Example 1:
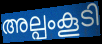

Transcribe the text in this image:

അല്പംകൂടി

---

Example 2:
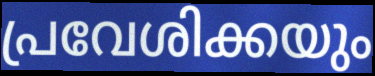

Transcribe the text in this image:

പ്രവേശിക്കയും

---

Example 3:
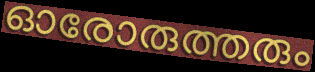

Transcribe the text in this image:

ഓരോരുത്തരും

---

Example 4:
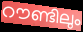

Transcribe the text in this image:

റൗണ്ടിലും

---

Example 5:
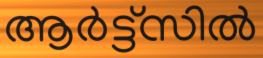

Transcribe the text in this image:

ആർട്ട്സിൽ